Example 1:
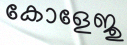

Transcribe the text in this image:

കോളേജു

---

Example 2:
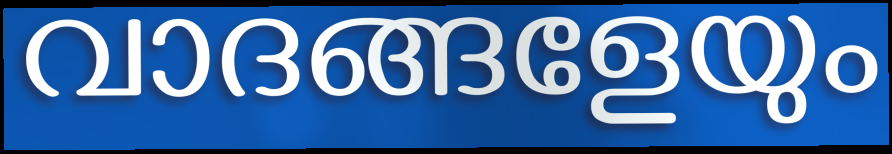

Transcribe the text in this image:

വാദങ്ങളേയും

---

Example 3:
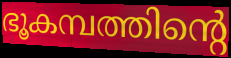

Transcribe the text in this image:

ഭൂകമ്പത്തിന്റെ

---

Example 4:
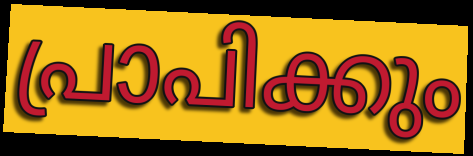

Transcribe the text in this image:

പ്രാപിക്കും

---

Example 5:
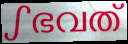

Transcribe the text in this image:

ഽഭവത്